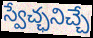
స్వేచ్ఛనిచ్చే